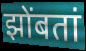
झोंबतां